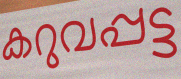
കറുവപ്പട്ട